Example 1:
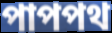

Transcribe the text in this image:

পাপপথ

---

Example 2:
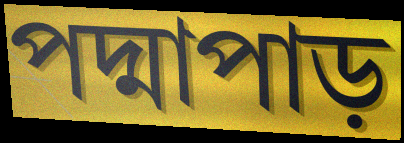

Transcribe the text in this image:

পদ্মাপাড়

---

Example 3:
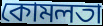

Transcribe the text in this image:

কোমলতা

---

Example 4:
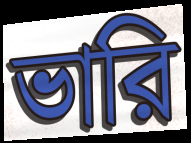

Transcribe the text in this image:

ভারি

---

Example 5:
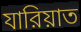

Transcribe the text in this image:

যারিয়াত